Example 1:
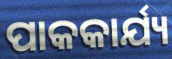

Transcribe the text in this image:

ପାକକାର୍ଯ୍ୟ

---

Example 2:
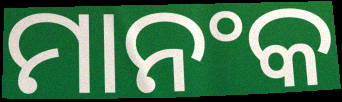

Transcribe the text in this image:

ମାନଂକ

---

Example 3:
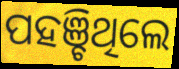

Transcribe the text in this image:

ପହଞ୍ଚିଥିଲେ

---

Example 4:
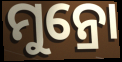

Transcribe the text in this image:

ମୁନ୍ରୋ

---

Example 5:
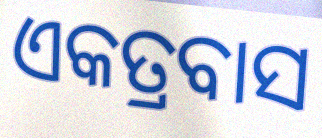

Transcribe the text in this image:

ଏକତ୍ରବାସ